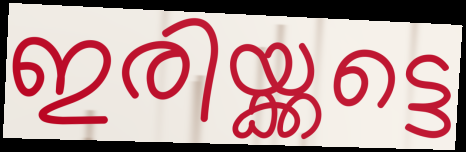
ഇരിയ്ക്കട്ടെ